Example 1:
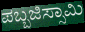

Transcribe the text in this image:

ಪಬ್ಬಜಿಸ್ಸಾಮಿ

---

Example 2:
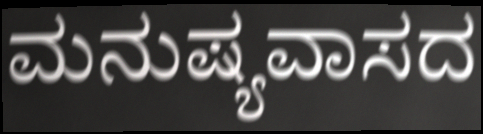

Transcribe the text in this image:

ಮನುಷ್ಯವಾಸದ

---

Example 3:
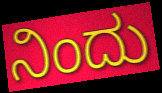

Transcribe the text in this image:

ನಿಂದು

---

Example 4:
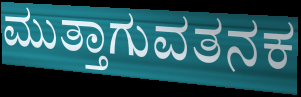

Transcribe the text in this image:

ಮುತ್ತಾಗುವತನಕ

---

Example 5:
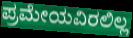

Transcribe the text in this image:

ಪ್ರಮೇಯವಿರಲಿಲ್ಲ